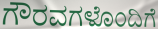
ಗೌರವಗಳೊಂದಿಗೆ